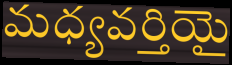
మధ్యవర్తియై